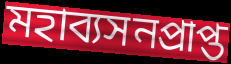
মহাব্যসনপ্রাপ্ত